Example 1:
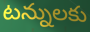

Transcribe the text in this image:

టన్నులకు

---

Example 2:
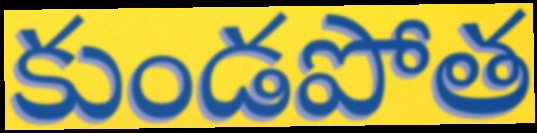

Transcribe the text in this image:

కుండపోత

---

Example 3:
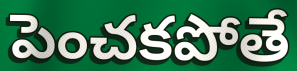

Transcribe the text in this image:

పెంచకపోతే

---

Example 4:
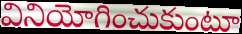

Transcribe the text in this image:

వినియోగించుకుంటూ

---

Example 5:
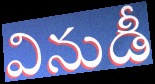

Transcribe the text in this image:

వినుడీ